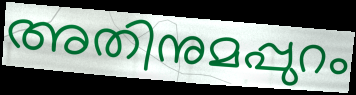
അതിനുമപ്പുറം